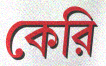
কেরি